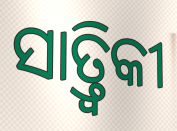
ସାତ୍ତ୍ୱିକୀ